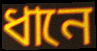
ধানে